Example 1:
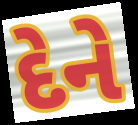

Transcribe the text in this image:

દેને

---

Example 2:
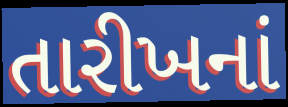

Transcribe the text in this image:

તારીખનાં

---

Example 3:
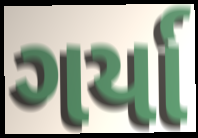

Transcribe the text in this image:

ગર્યા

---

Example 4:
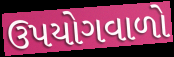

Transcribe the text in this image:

ઉપયોગવાળો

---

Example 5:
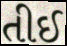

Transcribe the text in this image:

તીઈ